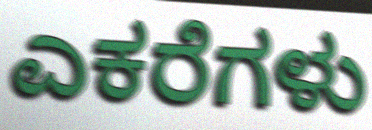
ಎಕರೆಗಳು